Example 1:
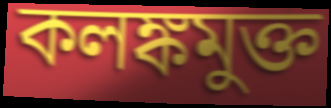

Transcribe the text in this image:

কলঙ্কমুক্ত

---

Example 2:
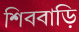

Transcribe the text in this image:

শিববাড়ি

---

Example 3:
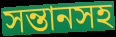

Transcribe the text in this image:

সন্তানসহ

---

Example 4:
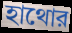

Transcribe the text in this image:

হাথোর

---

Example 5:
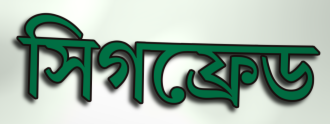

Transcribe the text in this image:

সিগফ্রেড